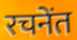
रचनेंत